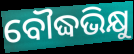
ବୌଦ୍ଧଭିକ୍ଷୁ